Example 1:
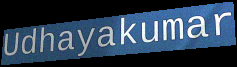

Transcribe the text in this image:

Udhayakumar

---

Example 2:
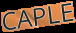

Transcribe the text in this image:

CAPLE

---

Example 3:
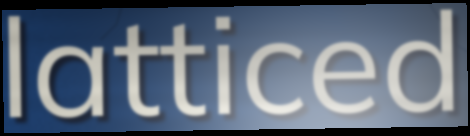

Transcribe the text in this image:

latticed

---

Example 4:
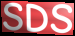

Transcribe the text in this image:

SDS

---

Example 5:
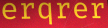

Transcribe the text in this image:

erqrer